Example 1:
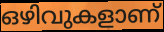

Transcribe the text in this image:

ഒഴിവുകളാണ്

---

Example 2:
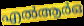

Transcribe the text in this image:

എൽആർഒ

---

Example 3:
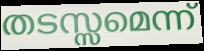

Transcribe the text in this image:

തടസ്സമെന്ന്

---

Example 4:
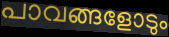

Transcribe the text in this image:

പാവങ്ങളോടും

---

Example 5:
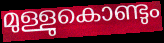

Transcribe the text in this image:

മുള്ളുകൊണ്ടും